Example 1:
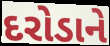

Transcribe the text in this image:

દરોડાને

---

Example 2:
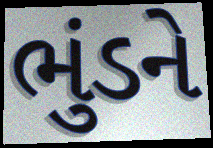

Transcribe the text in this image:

ભુંડને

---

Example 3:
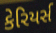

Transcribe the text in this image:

કેરિયર્સ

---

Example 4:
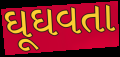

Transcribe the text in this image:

ઘૂઘવતા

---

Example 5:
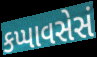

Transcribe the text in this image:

કપ્પાવસેસં